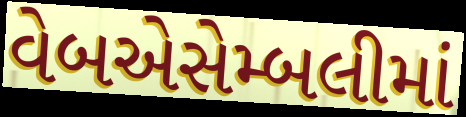
વેબએસેમ્બલીમાં